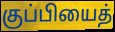
குப்பியைத்